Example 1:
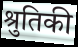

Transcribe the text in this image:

श्रुतिकी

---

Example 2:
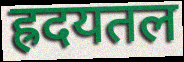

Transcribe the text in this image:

ह्रदयतल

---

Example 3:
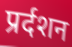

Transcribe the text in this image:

प्रर्दशन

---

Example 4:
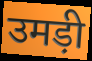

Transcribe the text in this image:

उमड़ी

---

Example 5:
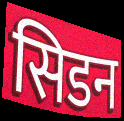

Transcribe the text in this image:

सिडन